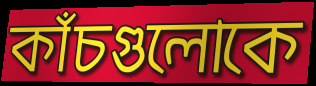
কাঁচগুলোকে